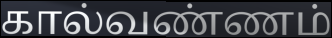
கால்வண்ணம்